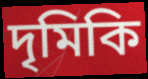
দৃমিকি